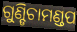
ଗୁଣ୍ଡିଚାମଣ୍ଡପ